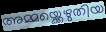
അമ്മയ്ക്കെഴുതിയ